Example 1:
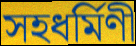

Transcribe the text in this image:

সহধৰ্মিণী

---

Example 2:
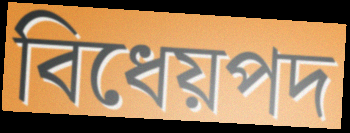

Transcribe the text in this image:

বিধেয়পদ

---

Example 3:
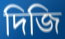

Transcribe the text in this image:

দিজি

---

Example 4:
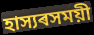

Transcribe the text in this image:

হাস্যৰসময়ী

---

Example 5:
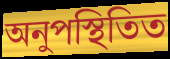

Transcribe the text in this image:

অনুপস্থিতিত